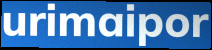
urimaipor